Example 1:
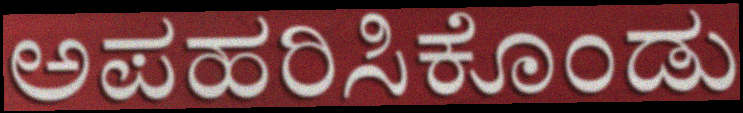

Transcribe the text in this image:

ಅಪಹರಿಸಿಕೊಂಡು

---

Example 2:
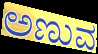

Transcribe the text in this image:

ಅಣುವ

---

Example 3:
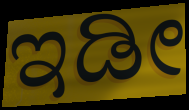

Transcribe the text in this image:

ಇಡೀ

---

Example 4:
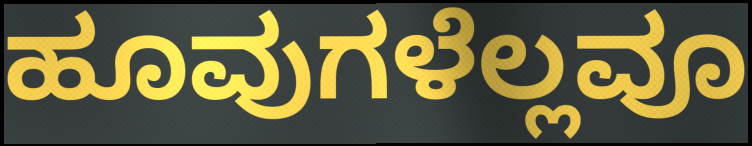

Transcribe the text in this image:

ಹೂವುಗಳೆಲ್ಲವೂ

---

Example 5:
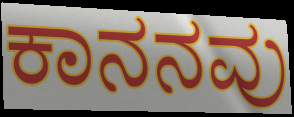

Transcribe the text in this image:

ಕಾನನವು